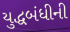
યુદ્ધબંધીની